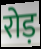
रोड़